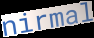
nirmal